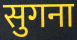
सुगना